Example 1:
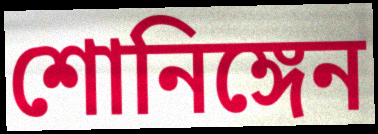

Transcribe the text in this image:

শোনিঙ্গেন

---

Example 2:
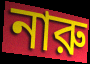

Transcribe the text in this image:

নারু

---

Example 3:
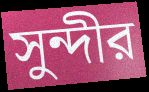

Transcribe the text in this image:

সুন্দীর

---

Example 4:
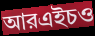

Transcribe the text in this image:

আরএইচও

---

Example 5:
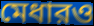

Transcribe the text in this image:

মেধারও